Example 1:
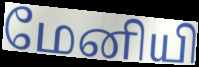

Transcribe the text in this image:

மேனியி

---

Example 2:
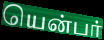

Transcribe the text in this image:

யென்பர்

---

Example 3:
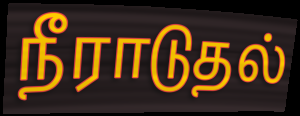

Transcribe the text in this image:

நீராடுதல்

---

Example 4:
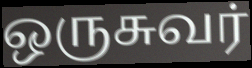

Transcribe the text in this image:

ஒருசுவர்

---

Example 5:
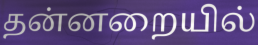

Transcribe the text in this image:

தன்னறையில்